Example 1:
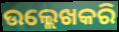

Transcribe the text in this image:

ଉଲ୍ଲେଖକରି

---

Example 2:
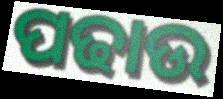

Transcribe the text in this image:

ପଢାଉ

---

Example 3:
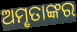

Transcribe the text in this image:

ଅମୃତାଙ୍କର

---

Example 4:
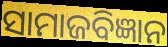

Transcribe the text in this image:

ସାମାଜବିଜ୍ଞାନ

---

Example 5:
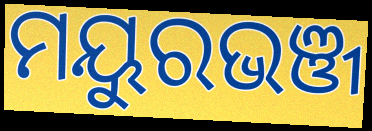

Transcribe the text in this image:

ମୟୁରଭଞ୍ଜ